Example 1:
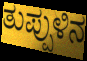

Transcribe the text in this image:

ತುಪ್ಪುಳಿನ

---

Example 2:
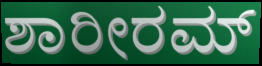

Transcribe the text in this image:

ಶಾರೀರಮ್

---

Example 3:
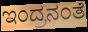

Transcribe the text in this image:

ಇಂದ್ರನಂತೆ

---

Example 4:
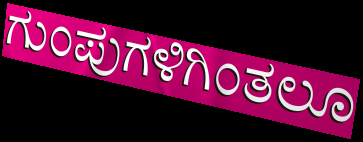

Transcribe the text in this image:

ಗುಂಪುಗಳಿಗಿಂತಲೂ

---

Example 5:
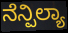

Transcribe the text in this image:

ನೆನ್ಪಿಲ್ಯಾ